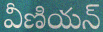
వీణియన్